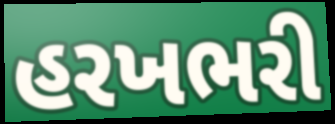
હરખભરી